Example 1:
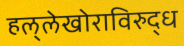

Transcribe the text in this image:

हल्लेखोराविरुद्ध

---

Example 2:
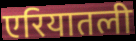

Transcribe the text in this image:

एरियातली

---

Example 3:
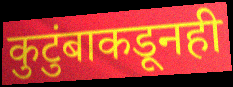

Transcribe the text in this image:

कुटुंबाकडूनही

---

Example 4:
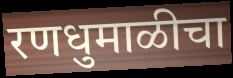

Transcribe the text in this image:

रणधुमाळीचा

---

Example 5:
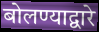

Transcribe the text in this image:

बोलण्याद्वारे